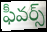
ఫీవర్స్